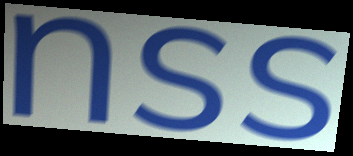
nss